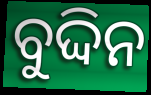
ବୁଦ୍ଦିନ